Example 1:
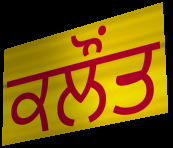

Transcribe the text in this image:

ਕਲੌਂਤ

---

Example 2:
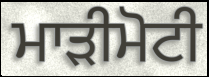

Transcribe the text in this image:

ਮਾੜੀਮੋਟੀ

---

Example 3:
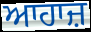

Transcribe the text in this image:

ਆਹਾਜ਼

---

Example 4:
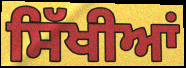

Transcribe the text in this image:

ਸਿੱਖੀਆਂ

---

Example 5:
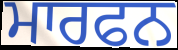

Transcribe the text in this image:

ਮਾਰਫਨ